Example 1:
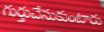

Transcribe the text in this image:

గుర్తుచేసుకుంటారు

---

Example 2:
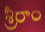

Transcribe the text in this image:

శ్రీరాం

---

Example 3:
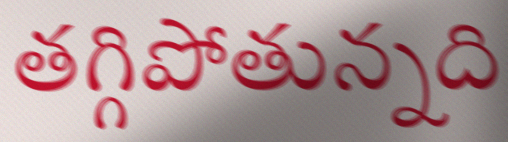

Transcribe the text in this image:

తగ్గిపోతున్నది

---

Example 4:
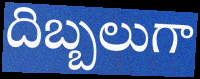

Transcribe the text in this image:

దిబ్బలుగా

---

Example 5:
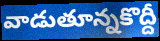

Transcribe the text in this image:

వాడుతూన్నకొద్దీ